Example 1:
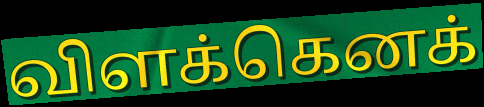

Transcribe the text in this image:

விளக்கெனக்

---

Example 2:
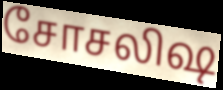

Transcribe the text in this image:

சோசலிஷ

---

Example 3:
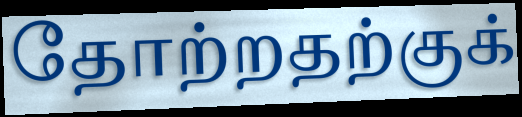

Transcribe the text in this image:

தோற்றதற்குக்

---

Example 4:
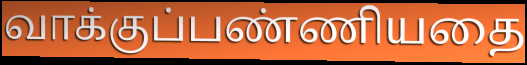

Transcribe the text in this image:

வாக்குப்பண்ணியதை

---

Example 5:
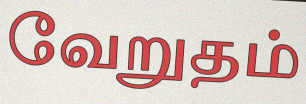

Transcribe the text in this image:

வேறுதம்